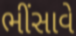
ભીંસાવે